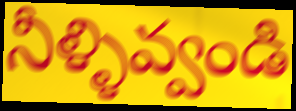
నీళ్ళివ్వండి